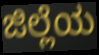
ಜಿಲ್ಲೆಯ